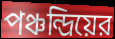
পঞ্চন্দ্রিয়ের